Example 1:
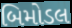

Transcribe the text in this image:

બિમોડલ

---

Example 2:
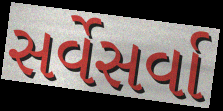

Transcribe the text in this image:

સર્વેસર્વા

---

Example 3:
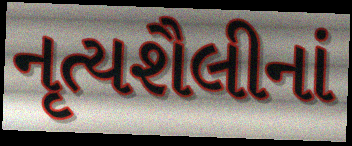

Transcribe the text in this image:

નૃત્યશૈલીનાં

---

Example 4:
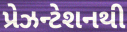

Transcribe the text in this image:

પ્રેઝન્ટેશનથી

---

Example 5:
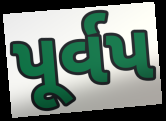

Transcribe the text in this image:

પૂર્વપ